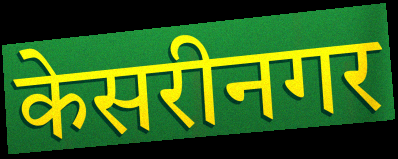
केसरीनगर